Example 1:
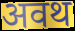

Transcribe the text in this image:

अवथ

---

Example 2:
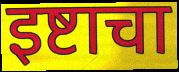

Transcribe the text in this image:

इष्टाचा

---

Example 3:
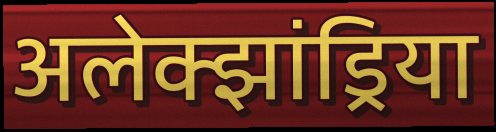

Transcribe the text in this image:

अलेक्झांड्रिया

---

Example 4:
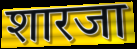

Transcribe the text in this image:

शारजा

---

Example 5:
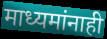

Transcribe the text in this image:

माध्यमांनाही